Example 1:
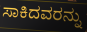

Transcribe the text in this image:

ಸಾಕಿದವರನ್ನು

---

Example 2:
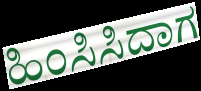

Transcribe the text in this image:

ಹಿಂಸಿಸಿದಾಗ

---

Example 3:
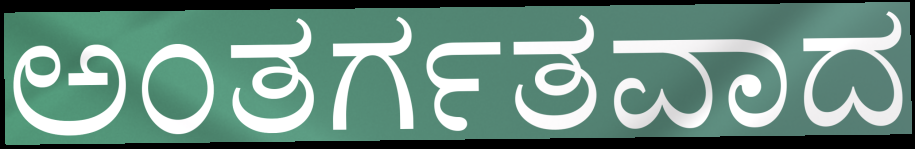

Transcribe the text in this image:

ಅಂತರ್ಗತವಾದ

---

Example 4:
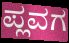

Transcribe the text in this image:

ಪ್ಲವಗ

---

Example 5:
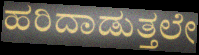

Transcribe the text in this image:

ಹರಿದಾಡುತ್ತಲೇ